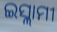
ଇସ୍ଲାମୀ